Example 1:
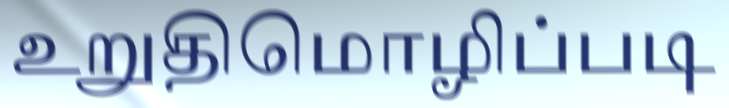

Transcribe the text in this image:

உறுதிமொழிப்படி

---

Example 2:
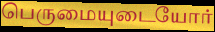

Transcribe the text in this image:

பெருமையுடையோர்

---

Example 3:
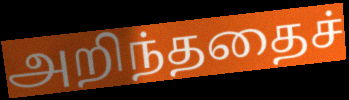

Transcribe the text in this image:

அறிந்ததைச்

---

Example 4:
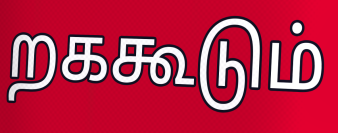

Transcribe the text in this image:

றககூடும்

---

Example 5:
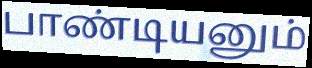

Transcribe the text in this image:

பாண்டியனும்